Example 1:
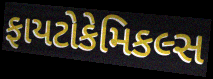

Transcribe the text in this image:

ફાયટોકેમિકલ્સ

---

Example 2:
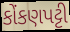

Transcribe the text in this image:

કોંકણપટ્ટી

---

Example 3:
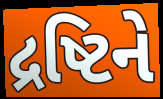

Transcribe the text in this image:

દ્રષ્ટિને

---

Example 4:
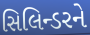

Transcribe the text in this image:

સિલિન્ડરને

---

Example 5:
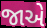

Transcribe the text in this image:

જાએ